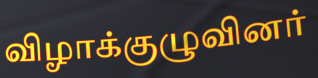
விழாக்குழுவினர்